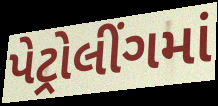
પેટ્રોલીંગમાં